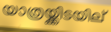
യാത്രയ്ക്കിടയില്